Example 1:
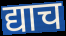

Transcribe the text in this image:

द्याच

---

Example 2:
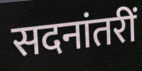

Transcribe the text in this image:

सदनांतरीं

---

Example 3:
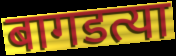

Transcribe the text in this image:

बागडत्या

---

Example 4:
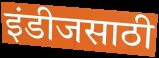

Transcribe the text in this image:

इंडीजसाठी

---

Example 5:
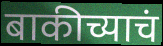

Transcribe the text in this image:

बाकीच्याचं